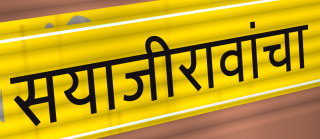
सयाजीरावांचा